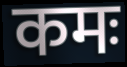
कमः